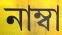
নাম্বা